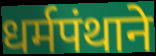
धर्मपंथाने